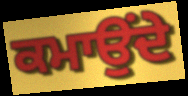
ਕਮਾਉਂਦੇ